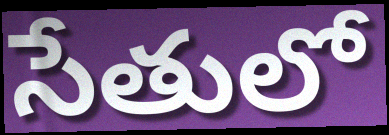
సేతులో